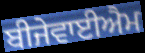
ਬੀਜੇਵਾਈਐਮ